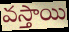
వస్తాయి